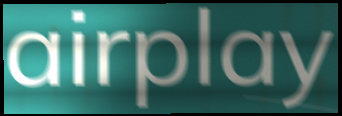
airplay